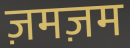
ज़मज़म